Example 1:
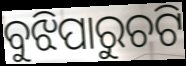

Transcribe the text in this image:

ବୁଝିପାରୁଚଟି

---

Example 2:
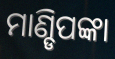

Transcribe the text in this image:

ମାଣ୍ଡିପଙ୍କା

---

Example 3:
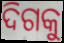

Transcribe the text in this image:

ଦିଗକୁ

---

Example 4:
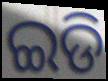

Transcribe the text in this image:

ଇଡି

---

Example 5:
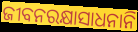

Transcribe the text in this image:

ଜୀବନରକ୍ଷାସାଧନାନି